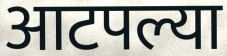
आटपल्या